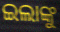
ଇଲାଙ୍କୁ